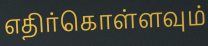
எதிர்கொள்ளவும்